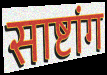
साष्टांग